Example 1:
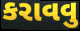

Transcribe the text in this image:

કરાવવુ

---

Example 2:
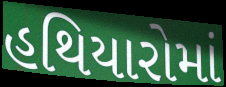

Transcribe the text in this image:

હથિયારોમાં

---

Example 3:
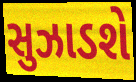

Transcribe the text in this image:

સુઝાડશે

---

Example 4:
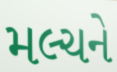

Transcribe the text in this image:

મલ્ચને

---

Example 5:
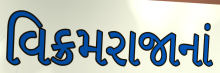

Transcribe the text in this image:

વિક્રમરાજાનાં